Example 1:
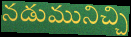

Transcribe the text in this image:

నడుమునిచ్చి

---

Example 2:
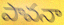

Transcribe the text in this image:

పావనా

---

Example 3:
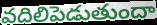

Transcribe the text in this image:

వదిలిపెడుతుందా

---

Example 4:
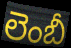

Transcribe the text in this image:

లెంబీ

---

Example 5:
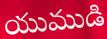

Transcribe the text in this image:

యుముడి